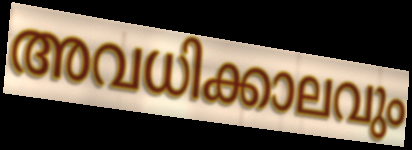
അവധിക്കാലവും